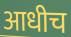
आधीच